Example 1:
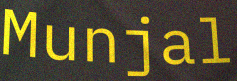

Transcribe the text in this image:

Munjal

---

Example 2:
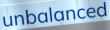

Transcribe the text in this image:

unbalanced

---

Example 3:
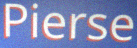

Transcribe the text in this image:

Pierse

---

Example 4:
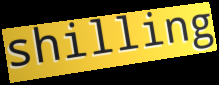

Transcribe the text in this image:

shilling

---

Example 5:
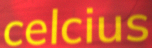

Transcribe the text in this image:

celcius